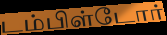
டம்பிள்டோர்